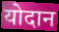
योदान